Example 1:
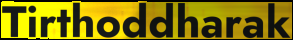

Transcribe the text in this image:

Tirthoddharak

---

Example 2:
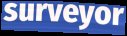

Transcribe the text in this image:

surveyor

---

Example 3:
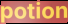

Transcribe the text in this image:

potion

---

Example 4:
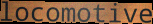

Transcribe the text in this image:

locomotive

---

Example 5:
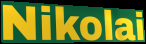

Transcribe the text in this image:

Nikolai